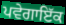
ਪਵੇਗਾਇੱਕ